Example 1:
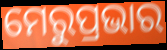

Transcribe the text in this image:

ମେରୁପ୍ରଭାର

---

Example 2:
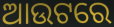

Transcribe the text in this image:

ଆଉଟରେ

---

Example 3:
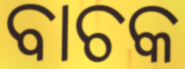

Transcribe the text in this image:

ବାଚକ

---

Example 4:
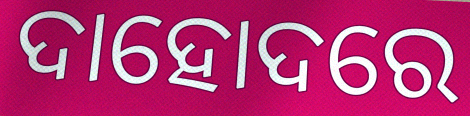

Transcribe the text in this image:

ଦାହୋଦରେ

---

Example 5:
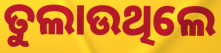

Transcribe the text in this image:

ତୁଲାଉଥିଲେ